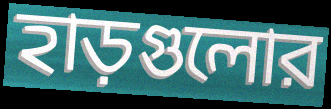
হাড়গুলোর